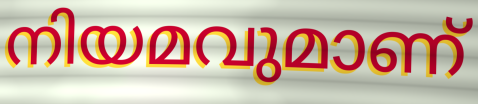
നിയമവുമാണ്